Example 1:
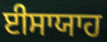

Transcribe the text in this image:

ਈਸਾਯਾਹ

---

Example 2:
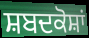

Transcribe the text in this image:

ਸ਼ਬਦਕੋਸ਼ਾਂ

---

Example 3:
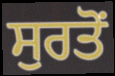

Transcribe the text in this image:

ਸੁਰਤੋਂ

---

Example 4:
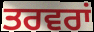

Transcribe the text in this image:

ਤਰਵਰਾਂ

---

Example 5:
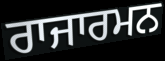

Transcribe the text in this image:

ਰਾਜਾਰਮਨ